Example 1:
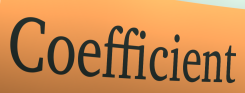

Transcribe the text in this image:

Coefficient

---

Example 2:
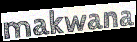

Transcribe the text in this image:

makwana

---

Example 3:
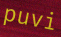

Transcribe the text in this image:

puvi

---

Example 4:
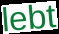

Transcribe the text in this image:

lebt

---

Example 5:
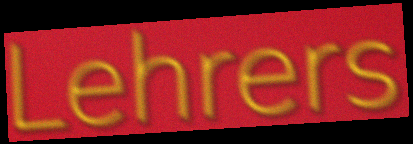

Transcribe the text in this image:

Lehrers